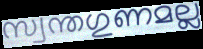
സ്വന്തഗുണമല്ല